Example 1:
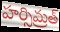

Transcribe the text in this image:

హర్సిమ్రత్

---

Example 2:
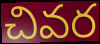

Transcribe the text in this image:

చివర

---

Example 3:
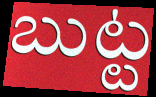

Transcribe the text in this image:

బుట్ట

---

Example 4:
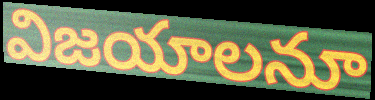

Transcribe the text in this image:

విజయాలనూ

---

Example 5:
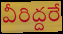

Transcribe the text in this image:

వీరిద్దరే